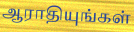
ஆராதியுங்கள்